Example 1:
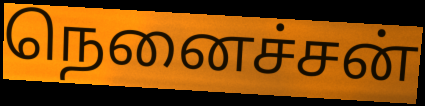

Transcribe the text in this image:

நெனைச்சன்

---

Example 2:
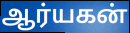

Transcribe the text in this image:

ஆர்யகன்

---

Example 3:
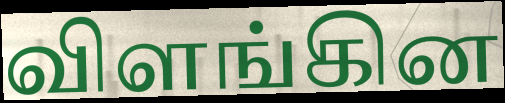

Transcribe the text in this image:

விளங்கின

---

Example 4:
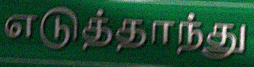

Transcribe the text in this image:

எடுத்தாந்து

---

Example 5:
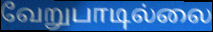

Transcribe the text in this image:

வேறுபாடில்லை